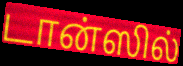
டான்ஸில்